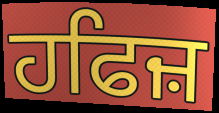
ਹਫਿਜ਼